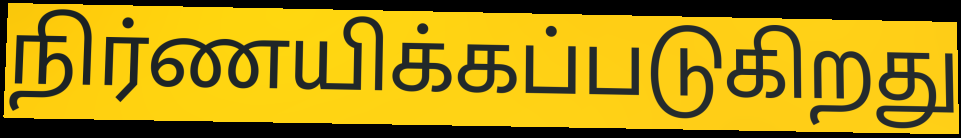
நிர்ணயிக்கப்படுகிறது